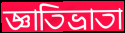
জ্ঞাতিভ্রাতা